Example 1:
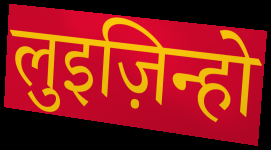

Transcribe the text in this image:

लुइज़िन्हो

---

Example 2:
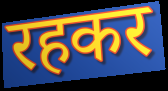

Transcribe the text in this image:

रहकर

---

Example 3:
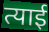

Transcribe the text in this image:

त्याई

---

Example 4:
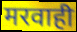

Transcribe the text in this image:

मरवाही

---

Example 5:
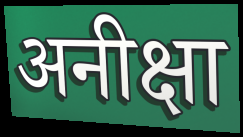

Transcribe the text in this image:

अनीक्षा